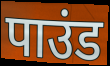
पाउंड